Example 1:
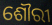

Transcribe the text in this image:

ଶୌରୀ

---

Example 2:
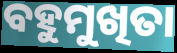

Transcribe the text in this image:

ବହୁମୁଖିତା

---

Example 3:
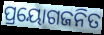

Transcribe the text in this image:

ପ୍ରୟୋଗଜନିତ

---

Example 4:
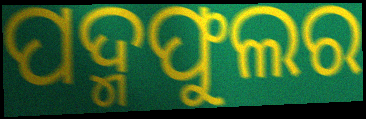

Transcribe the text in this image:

ପଦ୍ମଫୁଲର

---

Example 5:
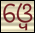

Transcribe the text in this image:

ଓ୍ବେ